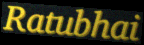
Ratubhai